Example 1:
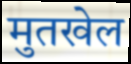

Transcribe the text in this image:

मुतखेल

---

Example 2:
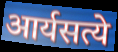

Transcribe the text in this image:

आर्यसत्ये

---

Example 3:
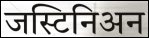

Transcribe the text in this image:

जस्टिनिअन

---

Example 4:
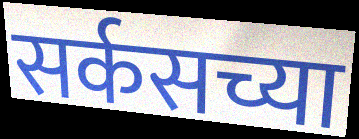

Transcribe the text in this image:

सर्कसच्या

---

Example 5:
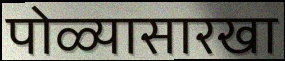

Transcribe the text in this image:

पोळ्यासारखा